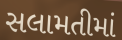
સલામતીમાં